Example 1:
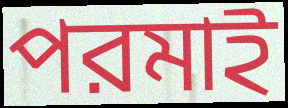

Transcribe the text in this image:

পরমাই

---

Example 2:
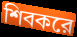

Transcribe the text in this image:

শিবকরে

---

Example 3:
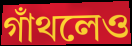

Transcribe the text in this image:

গাঁথলেও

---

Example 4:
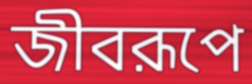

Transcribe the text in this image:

জীবরূপে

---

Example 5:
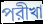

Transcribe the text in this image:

পরীখা